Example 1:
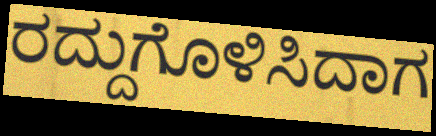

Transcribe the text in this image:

ರದ್ದುಗೊಳಿಸಿದಾಗ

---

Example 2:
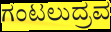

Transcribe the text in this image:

ಗಂಟಲುದ್ರವ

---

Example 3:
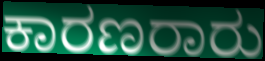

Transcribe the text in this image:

ಕಾರಣರಾರು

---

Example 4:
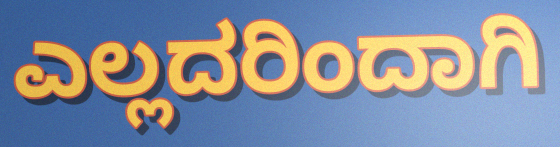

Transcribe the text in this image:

ಎಲ್ಲದರಿಂದಾಗಿ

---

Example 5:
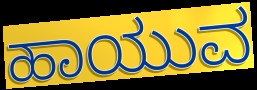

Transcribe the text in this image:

ಹಾಯುವ